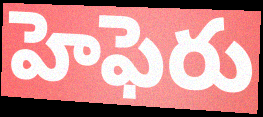
హెఫెరు